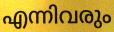
എന്നിവരും